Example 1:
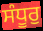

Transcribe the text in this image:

ਸੰਧੂਰੁ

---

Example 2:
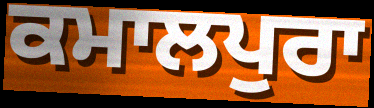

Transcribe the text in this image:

ਕਮਾਲਪੁਰਾ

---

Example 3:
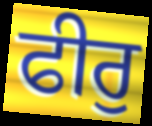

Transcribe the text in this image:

ਫੀਰੁ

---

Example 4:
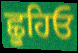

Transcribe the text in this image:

ਛੂਹਿਓ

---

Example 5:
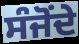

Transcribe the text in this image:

ਸੰਜੋਂਦੇ